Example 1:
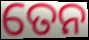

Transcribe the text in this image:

ତେନ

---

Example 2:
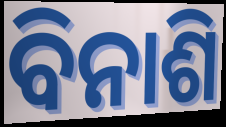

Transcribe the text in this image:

ବିନାଶି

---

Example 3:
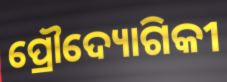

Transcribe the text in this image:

ପ୍ରୌଦ୍ୟୋଗିକୀ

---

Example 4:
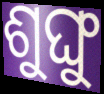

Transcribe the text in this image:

ଶୁଙ୍ଘୁ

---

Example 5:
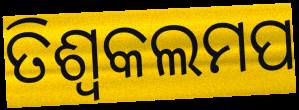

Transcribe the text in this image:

ତିଶ୍ୱକଲମପ